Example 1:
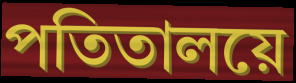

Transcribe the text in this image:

পতিতালয়ে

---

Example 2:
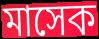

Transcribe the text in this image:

মাসেক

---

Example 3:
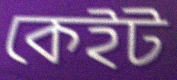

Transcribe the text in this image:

কেইট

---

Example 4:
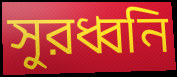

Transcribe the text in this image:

সুরধ্বনি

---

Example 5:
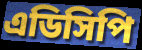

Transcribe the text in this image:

এডিসিপি